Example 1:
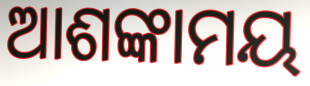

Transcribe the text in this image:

ଆଶଙ୍କାମୟ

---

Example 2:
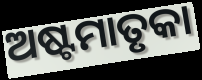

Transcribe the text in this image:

ଅଷ୍ଟମାତୃକା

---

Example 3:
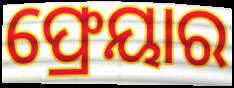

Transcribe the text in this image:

ଫ୍ରେୟାର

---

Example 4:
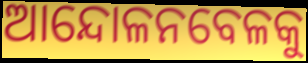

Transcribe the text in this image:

ଆନ୍ଦୋଳନବେଳକୁ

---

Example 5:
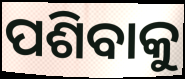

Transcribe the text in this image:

ପଶିବାକୁ